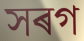
সৰগ